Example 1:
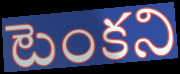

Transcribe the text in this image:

టెంకని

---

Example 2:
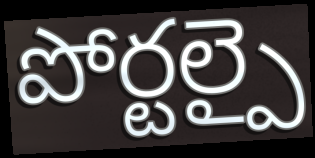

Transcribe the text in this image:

పోర్టల్పై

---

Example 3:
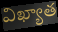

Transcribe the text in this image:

విఖ్యాత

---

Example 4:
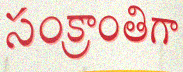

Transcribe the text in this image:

సంక్రాంతిగా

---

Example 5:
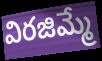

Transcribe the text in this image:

విరజిమ్మే